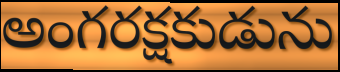
అంగరక్షకుడును